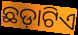
ଛଡ଼ାଟିଏ